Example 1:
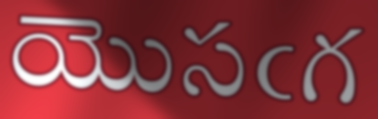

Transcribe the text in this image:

యొసఁగ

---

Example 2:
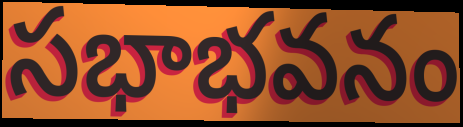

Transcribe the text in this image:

సభాభవనం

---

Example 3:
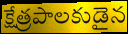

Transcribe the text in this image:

క్షేత్రపాలకుడైన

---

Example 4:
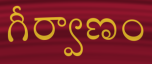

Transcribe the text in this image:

గీర్వాణం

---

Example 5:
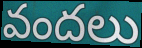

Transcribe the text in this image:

వందలు